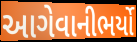
આગેવાનીભર્યો